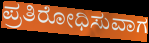
ಪ್ರತಿರೋಧಿಸುವಾಗ